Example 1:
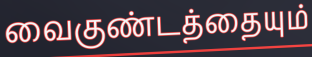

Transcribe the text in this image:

வைகுண்டத்தையும்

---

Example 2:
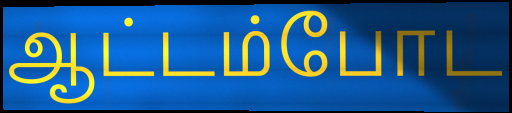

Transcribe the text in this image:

ஆட்டம்போட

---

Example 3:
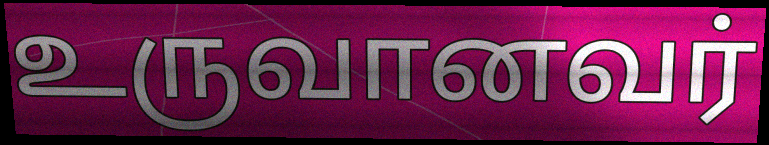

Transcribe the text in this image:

உருவானவர்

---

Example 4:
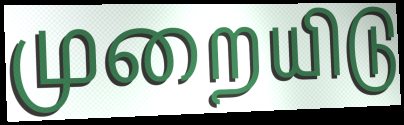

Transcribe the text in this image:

முறையிடு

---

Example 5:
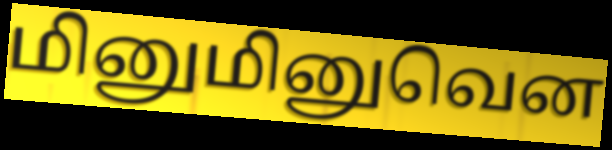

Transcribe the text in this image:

மினுமினுவென